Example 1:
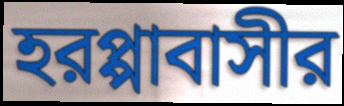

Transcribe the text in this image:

হরপ্পাবাসীর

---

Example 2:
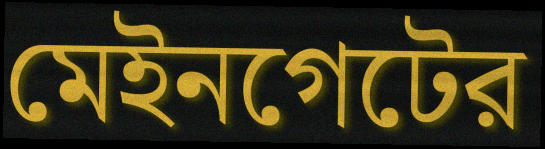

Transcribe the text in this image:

মেইনগেটের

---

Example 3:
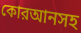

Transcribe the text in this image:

কোরআনসহ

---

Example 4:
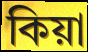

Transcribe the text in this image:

কিয়া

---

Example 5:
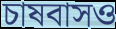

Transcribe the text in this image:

চাষবাসও